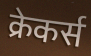
क्रेकर्स